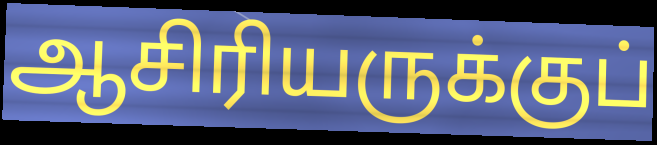
ஆசிரியருக்குப்